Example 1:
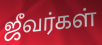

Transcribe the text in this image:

ஜீவர்கள்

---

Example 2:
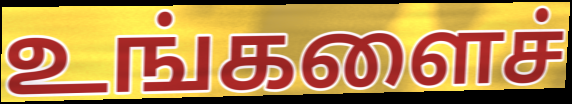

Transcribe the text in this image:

உங்களைச்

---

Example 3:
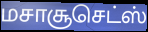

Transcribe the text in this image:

மசாசூசெட்ஸ்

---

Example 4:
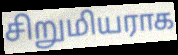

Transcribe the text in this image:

சிறுமியராக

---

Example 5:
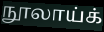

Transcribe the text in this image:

நூலாய்க்